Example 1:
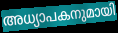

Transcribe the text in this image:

അധ്യാപകനുമായി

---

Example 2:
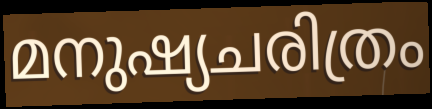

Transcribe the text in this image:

മനുഷ്യചരിത്രം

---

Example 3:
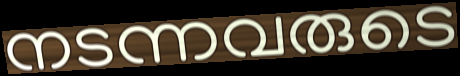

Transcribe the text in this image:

നടന്നവരുടെ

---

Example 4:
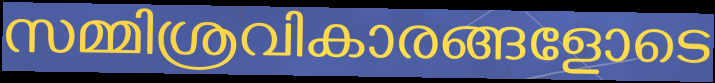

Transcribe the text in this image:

സമ്മിശ്രവികാരങ്ങളോടെ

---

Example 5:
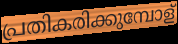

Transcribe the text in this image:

പ്രതികരിക്കുമ്പോള്